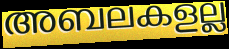
അബലകളല്ല